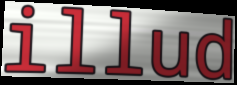
illud